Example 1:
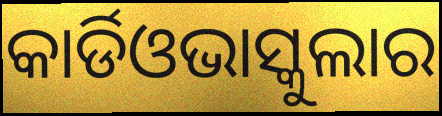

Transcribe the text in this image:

କାର୍ଡିଓଭାସ୍କୁଲାର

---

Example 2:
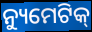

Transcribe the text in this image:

ନ୍ୟୁମେଟିକ୍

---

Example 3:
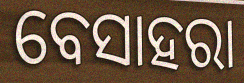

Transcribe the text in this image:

ବେସାହରା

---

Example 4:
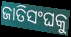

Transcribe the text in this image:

ଜାତିସଂଘକୁ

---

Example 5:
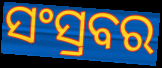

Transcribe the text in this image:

ସଂସ୍ରବର